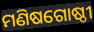
ମଣିଷଗୋଷ୍ଠୀ